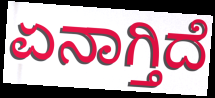
ಏನಾಗ್ತಿದೆ